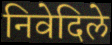
निवेदिले